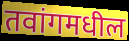
तवांगमधील